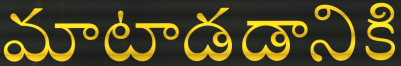
మాటాడడానికి